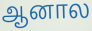
ஆனால